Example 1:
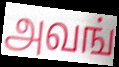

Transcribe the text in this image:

அவங்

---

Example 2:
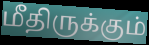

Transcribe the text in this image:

மீதிருக்கும்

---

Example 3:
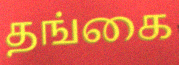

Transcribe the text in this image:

தங்கை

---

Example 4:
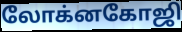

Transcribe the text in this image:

லோக்னகோஜி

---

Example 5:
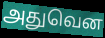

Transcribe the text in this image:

அதுவென